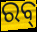
ରବ୍